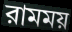
রামময়